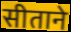
सीताने